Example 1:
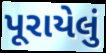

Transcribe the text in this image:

પૂરાયેલું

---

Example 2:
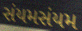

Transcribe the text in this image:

સંયમસંયમ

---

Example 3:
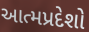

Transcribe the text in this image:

આત્મપ્રદેશો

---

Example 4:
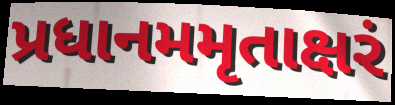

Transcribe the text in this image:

પ્રધાનમમૃતાક્ષરં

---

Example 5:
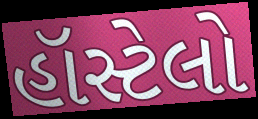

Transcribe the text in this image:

હૉસ્ટેલો